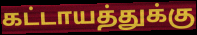
கட்டாயத்துக்கு